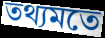
তথ্যমতে